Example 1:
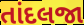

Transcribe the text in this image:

તાંદલજા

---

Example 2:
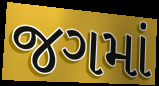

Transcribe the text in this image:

જગમાં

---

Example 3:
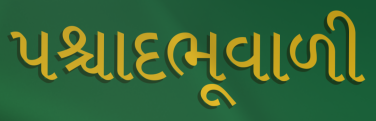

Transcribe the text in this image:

પશ્ચાદભૂવાળી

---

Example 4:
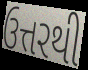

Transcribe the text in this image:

ઉત્તરથી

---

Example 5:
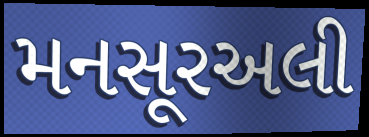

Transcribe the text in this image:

મનસૂરઅલી